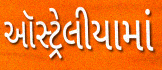
ઑસ્ટ્રેલીયામાં